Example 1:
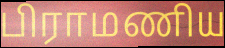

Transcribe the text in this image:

பிராமணிய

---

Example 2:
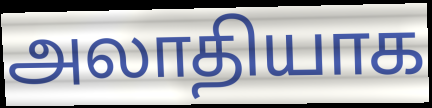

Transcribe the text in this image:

அலாதியாக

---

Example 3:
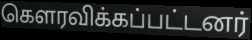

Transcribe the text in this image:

கௌரவிக்கப்பட்டனர்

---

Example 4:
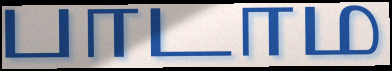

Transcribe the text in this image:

பாடாம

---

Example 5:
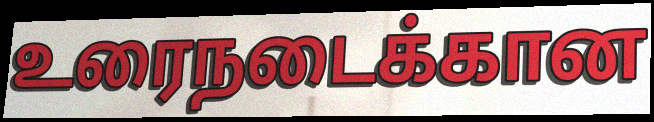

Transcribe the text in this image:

உரைநடைக்கான